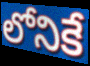
లోనికే